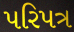
પરિપત્ર